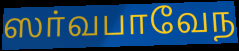
ஸர்வபாவேந